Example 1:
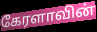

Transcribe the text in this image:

கேரளாவின்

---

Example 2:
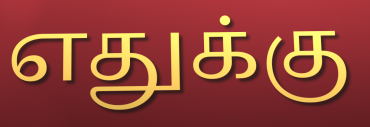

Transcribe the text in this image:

எதுக்கு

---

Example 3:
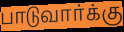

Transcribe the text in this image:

பாடுவார்க்கு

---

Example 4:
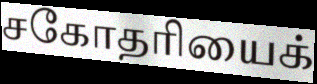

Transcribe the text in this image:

சகோதரியைக்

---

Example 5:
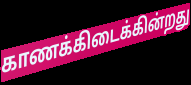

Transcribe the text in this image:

காணக்கிடைக்கின்றது